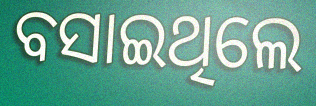
ବସାଇଥିଲେ